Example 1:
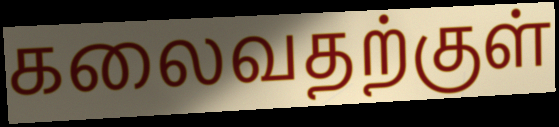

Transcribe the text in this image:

கலைவதற்குள்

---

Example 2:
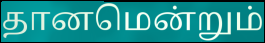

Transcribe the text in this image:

தானமென்றும்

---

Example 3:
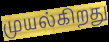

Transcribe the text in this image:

முயல்கிறது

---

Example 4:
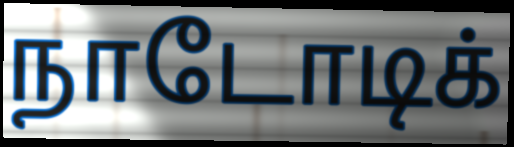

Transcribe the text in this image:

நாடோடிக்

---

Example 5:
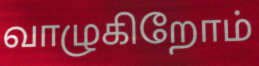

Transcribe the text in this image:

வாழுகிறோம்